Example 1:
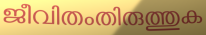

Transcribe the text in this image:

ജീവിതംതിരുത്തുക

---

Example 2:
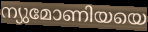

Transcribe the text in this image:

ന്യുമോണിയയെ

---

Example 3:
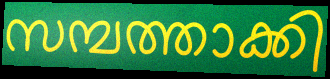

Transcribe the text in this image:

സമ്പത്താക്കി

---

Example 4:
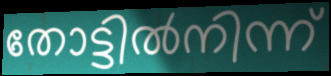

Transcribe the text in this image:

തോട്ടിൽനിന്ന്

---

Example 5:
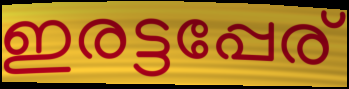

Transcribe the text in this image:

ഇരട്ടപ്പേര്